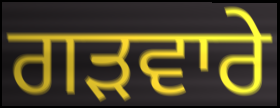
ਗੜਵਾਰੇ